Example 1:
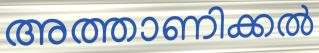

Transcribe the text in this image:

അത്താണിക്കൽ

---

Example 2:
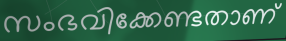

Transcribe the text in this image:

സംഭവിക്കേണ്ടതാണ്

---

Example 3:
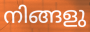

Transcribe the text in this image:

നിങ്ങളു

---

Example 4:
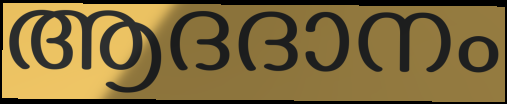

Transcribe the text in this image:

ആദദാനം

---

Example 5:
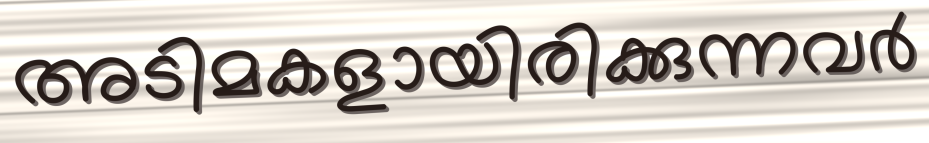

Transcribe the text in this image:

അടിമകളായിരിക്കുന്നവർ